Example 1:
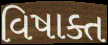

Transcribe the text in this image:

વિષાક્ત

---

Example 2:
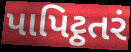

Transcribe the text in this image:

પાપિટ્ઠતરં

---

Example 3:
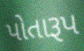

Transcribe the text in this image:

પોતારૂપ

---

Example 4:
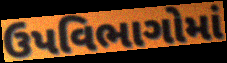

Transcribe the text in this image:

ઉપવિભાગોમાં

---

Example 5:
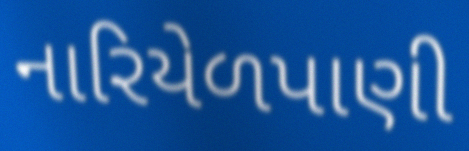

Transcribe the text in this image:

નારિયેળપાણી